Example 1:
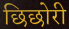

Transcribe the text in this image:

छिछोरी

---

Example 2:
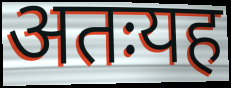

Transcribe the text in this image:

अतःयह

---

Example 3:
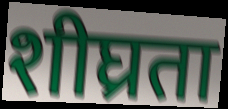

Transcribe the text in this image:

शीघ्रता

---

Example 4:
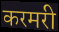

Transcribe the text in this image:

करमरी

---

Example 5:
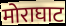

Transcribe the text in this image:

मोराघाट